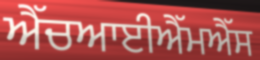
ਐੱਚਆਈਐੱਮਐੱਸ